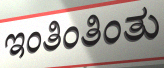
ಇಂತಿಂತಿಂತು